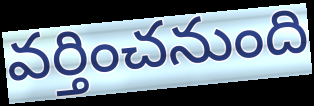
వర్తించనుంది